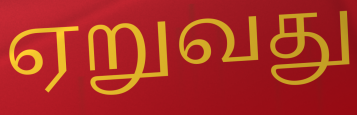
ஏறுவது